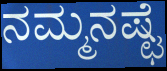
ನಮ್ಮನಷ್ಟೆ